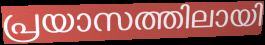
പ്രയാസത്തിലായി